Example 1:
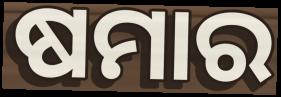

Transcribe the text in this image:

ଷମାର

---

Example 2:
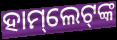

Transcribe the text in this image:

ହାମ୍‌ଲେଟ୍‌ଙ୍କ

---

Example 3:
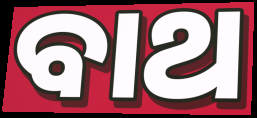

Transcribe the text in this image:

ବାଥ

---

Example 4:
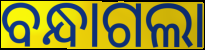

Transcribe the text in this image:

ବନ୍ଧାଗଲା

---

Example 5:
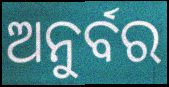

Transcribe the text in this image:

ଅନୁର୍ବର